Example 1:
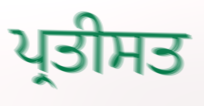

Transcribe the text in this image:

ਪ੍ਰਤੀਸਤ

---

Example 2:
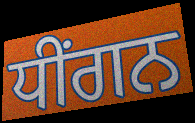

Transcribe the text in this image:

ਧੀਂਗਨ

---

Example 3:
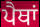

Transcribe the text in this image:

ਪੈਥਾਂ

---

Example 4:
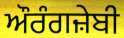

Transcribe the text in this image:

ਔਰੰਗਜ਼ੇਬੀ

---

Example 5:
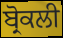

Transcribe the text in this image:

ਬ੍ਰੋਕਲੀ